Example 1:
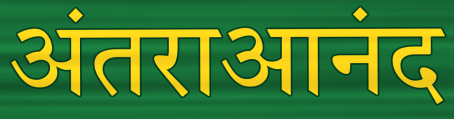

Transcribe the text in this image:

अंतराआनंद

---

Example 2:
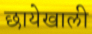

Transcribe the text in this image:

छायेखाली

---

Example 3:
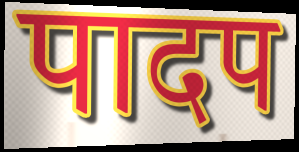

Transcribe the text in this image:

पादप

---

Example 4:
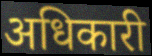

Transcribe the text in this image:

अधिकारी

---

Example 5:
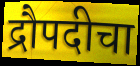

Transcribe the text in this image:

द्रौपदीचा